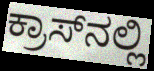
ಕ್ರಾಸ್‌ನಲ್ಲಿ